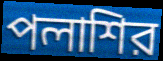
পলাশির